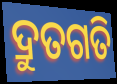
ଦ୍ରୁତଗତି